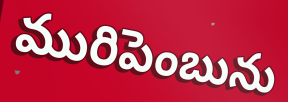
మురిపెంబును